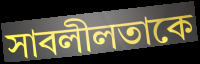
সাবলীলতাকে